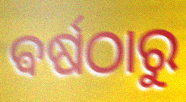
ଵର୍ଷଠାରୁ